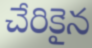
చేరికైన